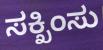
ಸಕ್ಖಿಂಸು